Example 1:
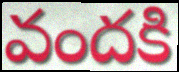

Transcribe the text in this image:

వందకి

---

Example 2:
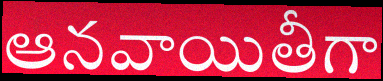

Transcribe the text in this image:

ఆనవాయితీగా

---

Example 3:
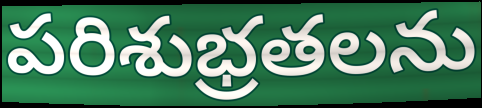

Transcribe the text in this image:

పరిశుభ్రతలను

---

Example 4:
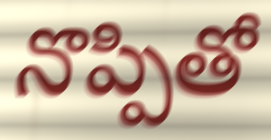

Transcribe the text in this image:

నొప్పితో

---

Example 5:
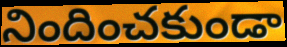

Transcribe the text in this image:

నిందించకుండా